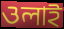
ওলাই